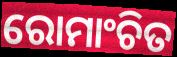
ରୋମାଂଚିତ